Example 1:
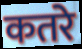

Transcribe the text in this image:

कतरे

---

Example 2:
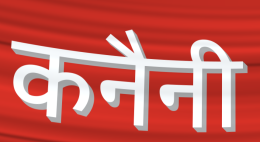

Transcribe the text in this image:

कनैनी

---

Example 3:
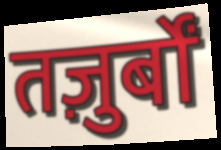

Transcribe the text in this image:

तज़ुर्बों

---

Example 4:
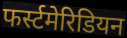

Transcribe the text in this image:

फर्स्टमेरिडियन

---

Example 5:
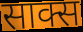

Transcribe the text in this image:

साक्स